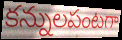
కన్నులపంటగా